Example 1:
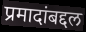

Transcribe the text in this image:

प्रमादांबद्दल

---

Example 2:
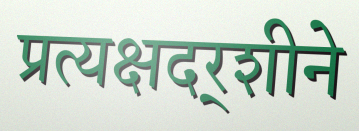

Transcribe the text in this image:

प्रत्यक्षदर्शीने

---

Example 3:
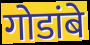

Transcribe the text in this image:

गोडांबे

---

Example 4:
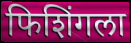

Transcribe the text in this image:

फिशिंगला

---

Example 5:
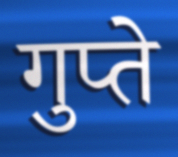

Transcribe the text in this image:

गुप्ते